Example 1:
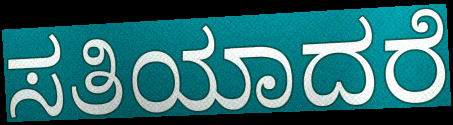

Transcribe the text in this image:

ಸತಿಯಾದರೆ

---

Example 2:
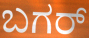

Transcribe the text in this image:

ಬಗರ್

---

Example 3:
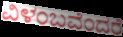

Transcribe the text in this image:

ವಿಳಂಬವೆಂದರೆ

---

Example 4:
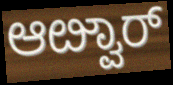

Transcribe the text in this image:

ಆೞ್ವಾರ್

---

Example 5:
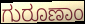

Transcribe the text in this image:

ಗುರೂಣಾಂ